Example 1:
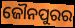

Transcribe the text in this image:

ଜୌନପୁରର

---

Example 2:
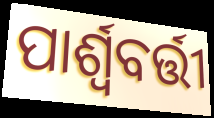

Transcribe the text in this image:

ପାର୍ଶ୍ୱବର୍ତ୍ତୀ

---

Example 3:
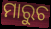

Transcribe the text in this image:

ମାରୁଚ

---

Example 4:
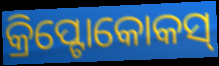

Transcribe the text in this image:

କ୍ରିପ୍ଟୋକୋକସ୍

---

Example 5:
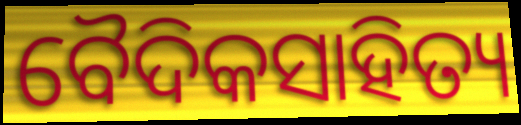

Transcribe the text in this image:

ବୈଦିକସାହିତ୍ୟ